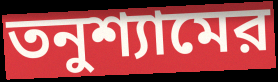
তনুশ্যামের